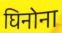
घिनोना